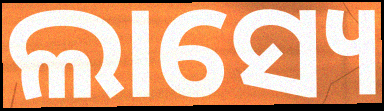
ଲାସ୍ୟେ